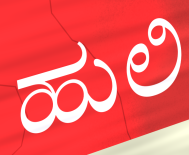
ಹುಲಿ